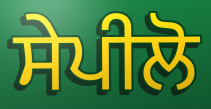
ਸੇਪੀਲੋ